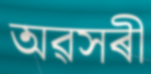
অৱসৰী